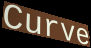
Curve